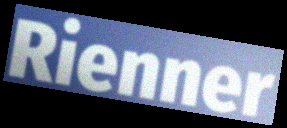
Rienner